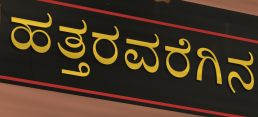
ಹತ್ತರವರೆಗಿನ